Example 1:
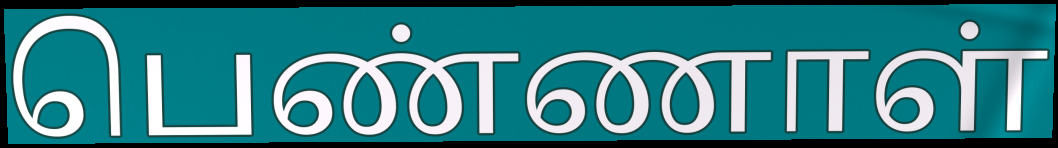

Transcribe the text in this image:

பெண்ணாள்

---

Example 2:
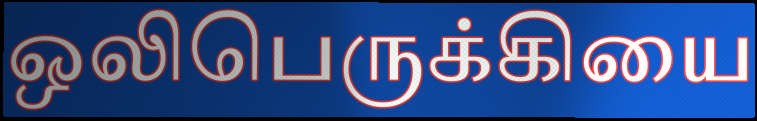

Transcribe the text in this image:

ஒலிபெருக்கியை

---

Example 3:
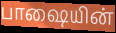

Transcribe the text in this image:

பாஷையின்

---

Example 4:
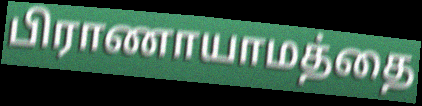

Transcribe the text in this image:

பிராணாயாமத்தை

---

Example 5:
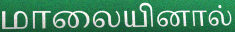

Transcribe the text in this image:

மாலையினால்